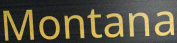
Montana